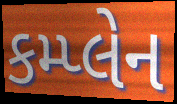
કમ્પ્લેન